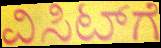
ವಿಸಿಟ್‌ಗೆ